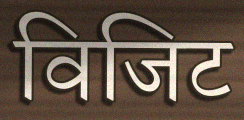
विजिट